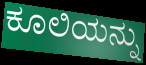
ಕೂಲಿಯನ್ನು